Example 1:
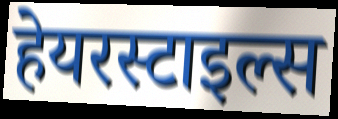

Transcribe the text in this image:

हेयरस्टाइल्स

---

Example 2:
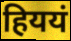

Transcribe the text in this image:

हिययं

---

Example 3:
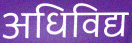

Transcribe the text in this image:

अधिविद्य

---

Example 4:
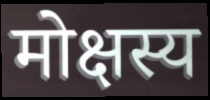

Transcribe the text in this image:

मोक्षस्य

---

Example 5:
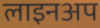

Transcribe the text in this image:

लाइनअप